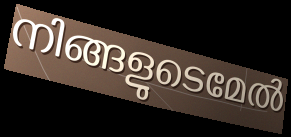
നിങ്ങളുടെമേൽ